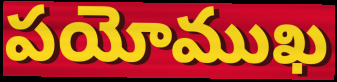
పయోముఖ